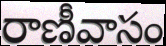
రాణీవాసం